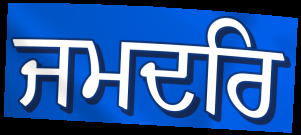
ਜਮਦਰਿ